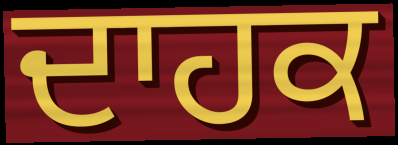
ਦਾਹਕ